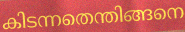
കിടന്നതെന്തിങ്ങനെ